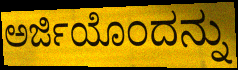
ಅರ್ಜಿಯೊಂದನ್ನು